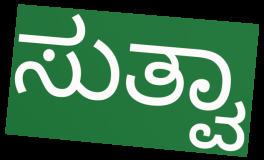
ಸುತ್ವಾ